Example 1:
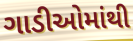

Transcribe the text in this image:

ગાડીઓમાંથી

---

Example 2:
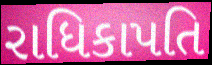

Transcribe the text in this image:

રાધિકાપતિ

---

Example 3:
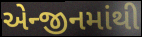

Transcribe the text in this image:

એન્જીનમાંથી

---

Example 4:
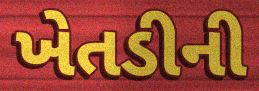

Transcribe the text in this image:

ખેતડીની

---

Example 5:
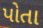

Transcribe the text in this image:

પોતા